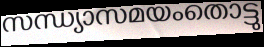
സന്ധ്യാസമയംതൊട്ടു